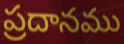
ప్రదానము